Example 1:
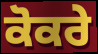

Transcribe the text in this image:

ਕੋਕਰੇ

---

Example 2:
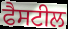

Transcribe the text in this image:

ਫੈਸਟੀਲ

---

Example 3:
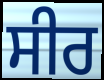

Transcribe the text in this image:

ਸੀਰ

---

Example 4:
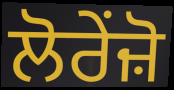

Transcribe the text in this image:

ਲੋਰੇਂਜ਼ੋ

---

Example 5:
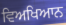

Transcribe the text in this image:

ਵਿਅਖਿਆਨ